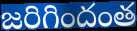
జరిగిందంత